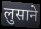
लुसाने